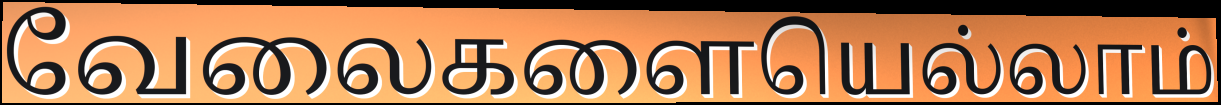
வேலைகளையெல்லாம்